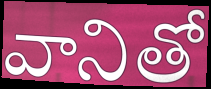
వానితో